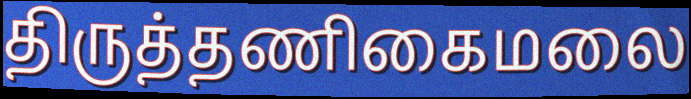
திருத்தணிகைமலை